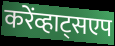
करेंव्हाट्सएप